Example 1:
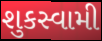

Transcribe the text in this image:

શુકસ્વામી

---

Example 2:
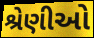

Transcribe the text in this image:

શ્રેણીઓ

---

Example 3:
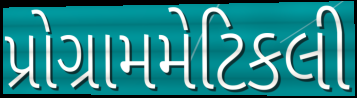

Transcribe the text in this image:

પ્રોગ્રામમેટિકલી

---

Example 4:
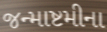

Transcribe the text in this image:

જન્માષ્ટમીના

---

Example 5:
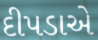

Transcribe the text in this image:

દીપડાએ